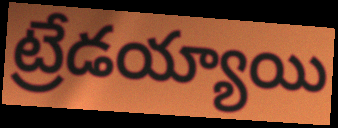
ట్రేడయ్యాయి